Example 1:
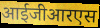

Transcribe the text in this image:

आईजीआरएस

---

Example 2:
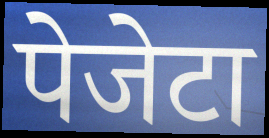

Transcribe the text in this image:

पेजेटा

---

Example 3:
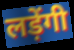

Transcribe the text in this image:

लड़ेंगी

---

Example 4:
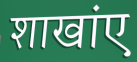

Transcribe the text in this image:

शाखांए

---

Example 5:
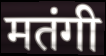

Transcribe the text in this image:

मतंगी